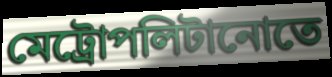
মেট্রোপলিটানোতে